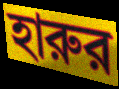
হারুর